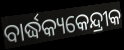
ବାର୍ଦ୍ଧକ୍ୟକେନ୍ଦ୍ରୀକ